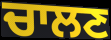
ਚਾਲਣ